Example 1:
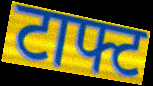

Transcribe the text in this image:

टाफ्ट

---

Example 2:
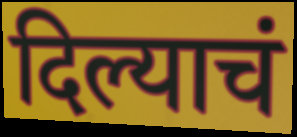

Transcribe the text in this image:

दिल्याचं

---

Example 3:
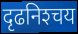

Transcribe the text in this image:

दृढनिश्‍चय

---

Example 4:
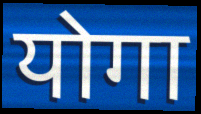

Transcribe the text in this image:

योगा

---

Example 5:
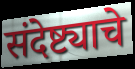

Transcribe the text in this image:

संदेष्ट्याचे